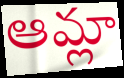
ఆమ్లా